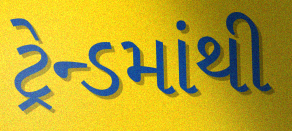
ટ્રેન્ડમાંથી